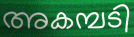
അകമ്പടി